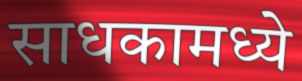
साधकामध्ये